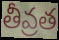
తీవ్రత